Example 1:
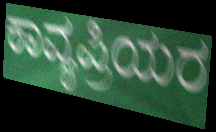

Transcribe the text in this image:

ಕಾವ್ಯಪ್ರಿಯರ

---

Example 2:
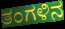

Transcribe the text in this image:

ತಂಗಳಿನ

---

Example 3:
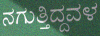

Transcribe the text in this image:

ನಗುತ್ತಿದ್ದವಳ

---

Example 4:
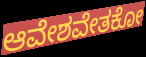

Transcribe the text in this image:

ಆವೇಶವೇತಕೋ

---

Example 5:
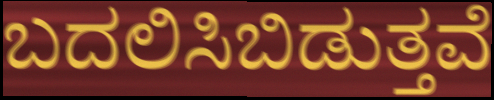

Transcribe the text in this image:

ಬದಲಿಸಿಬಿಡುತ್ತವೆ